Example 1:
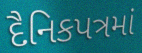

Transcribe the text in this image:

દૈનિકપત્રમાં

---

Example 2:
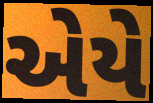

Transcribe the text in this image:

એયે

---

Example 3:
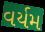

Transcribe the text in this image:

વર્યમ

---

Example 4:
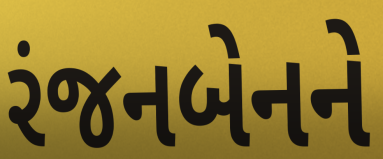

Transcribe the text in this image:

રંજનબેનને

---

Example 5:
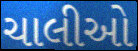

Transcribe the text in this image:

ચાલીઓ